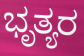
ಭೃತ್ಯರ